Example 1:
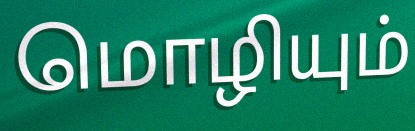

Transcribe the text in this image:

மொழியும்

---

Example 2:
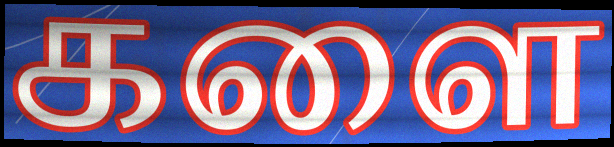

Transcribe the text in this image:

களை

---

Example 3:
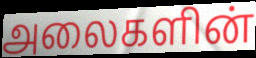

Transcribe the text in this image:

அலைகளின்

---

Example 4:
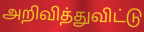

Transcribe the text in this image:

அறிவித்துவிட்டு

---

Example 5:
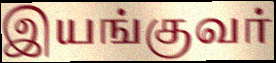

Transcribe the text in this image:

இயங்குவர்